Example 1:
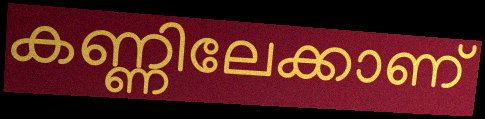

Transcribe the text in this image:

കണ്ണിലേക്കാണ്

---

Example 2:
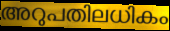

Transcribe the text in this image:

അറുപതിലധികം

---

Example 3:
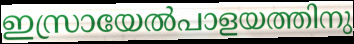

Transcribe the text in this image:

ഇസ്രായേൽപാളയത്തിനു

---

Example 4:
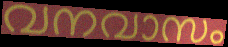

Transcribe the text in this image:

വനവാസം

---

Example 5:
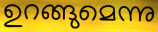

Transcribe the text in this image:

ഉറങ്ങുമെന്നു